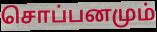
சொப்பனமும்